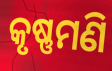
କୃଷ୍ଣମଣି